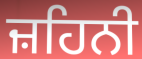
ਜ਼ਹਿਨੀ